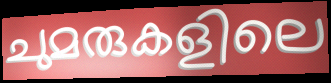
ചുമരുകളിലെ